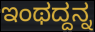
ಇಂಥದ್ದನ್ನ